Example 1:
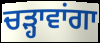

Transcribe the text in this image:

ਚੜ੍ਹਾਵਾਂਗਾ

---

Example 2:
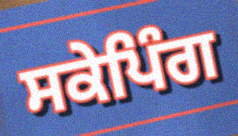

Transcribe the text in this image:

ਸਕੇਪਿੰਗ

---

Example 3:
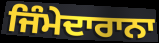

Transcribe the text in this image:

ਜਿੰਮੇਦਾਰਾਨਾ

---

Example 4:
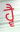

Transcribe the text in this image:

ਹ੍ਵੈ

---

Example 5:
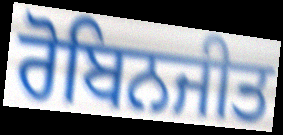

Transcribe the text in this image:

ਰੋਬਿਨਜੀਤ